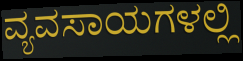
ವ್ಯವಸಾಯಗಳಲ್ಲಿ